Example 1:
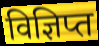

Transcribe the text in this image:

विज्ञिप्त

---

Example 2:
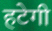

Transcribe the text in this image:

हटेगी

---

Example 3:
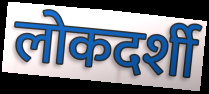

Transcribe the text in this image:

लोकदर्शी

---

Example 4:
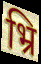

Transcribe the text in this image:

भ्रि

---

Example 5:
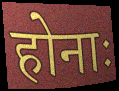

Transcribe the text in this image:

होनाः